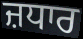
ਜ਼ਧਾਰ